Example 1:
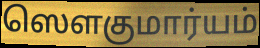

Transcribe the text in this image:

ஸௌகுமார்யம்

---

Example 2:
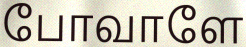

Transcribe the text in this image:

போவாளே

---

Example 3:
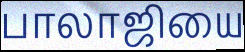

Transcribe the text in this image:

பாலாஜியை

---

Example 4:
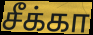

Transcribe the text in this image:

சீக்கா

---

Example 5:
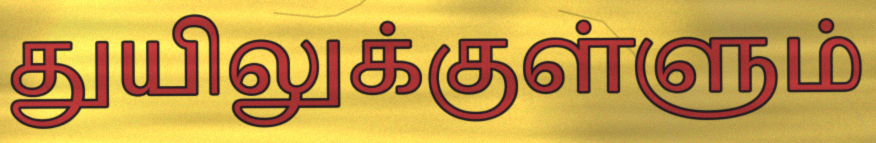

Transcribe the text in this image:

துயிலுக்குள்ளும்